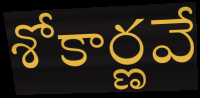
శోకార్ణవే